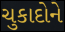
ચુકાદોને